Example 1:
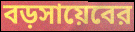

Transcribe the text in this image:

বড়সায়েবের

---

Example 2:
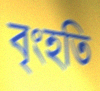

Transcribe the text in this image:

বৃংহতি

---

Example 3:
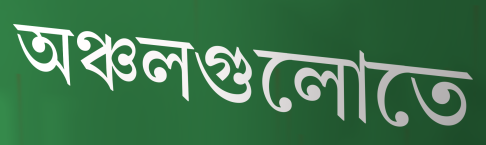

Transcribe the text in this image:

অঞ্চলগুলোতে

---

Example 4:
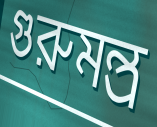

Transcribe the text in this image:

গুরুমন্ত্র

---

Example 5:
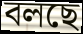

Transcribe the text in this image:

বলছে